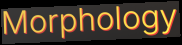
Morphology